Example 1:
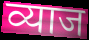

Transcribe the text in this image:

व्याज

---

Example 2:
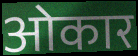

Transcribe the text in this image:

ओकार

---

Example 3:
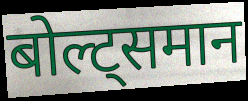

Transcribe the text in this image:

बोल्ट्समान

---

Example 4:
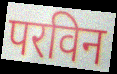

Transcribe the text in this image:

परविन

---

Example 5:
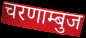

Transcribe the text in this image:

चरणाम्बुज